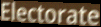
Electorate